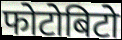
फोटोबिटो